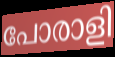
പോരാളി